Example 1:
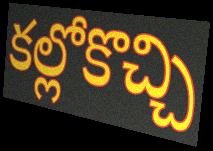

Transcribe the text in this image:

కల్లోకొచ్చి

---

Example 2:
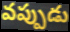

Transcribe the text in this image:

వప్పుడు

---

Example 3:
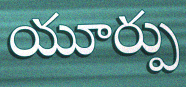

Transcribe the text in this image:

యూర్పు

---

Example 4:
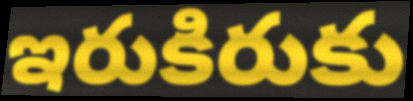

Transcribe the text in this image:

ఇరుకిరుకు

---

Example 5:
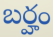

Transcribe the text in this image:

బర్హం